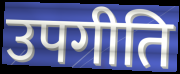
उपगीति